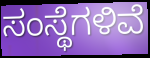
ಸಂಸ್ಥೆಗಳಿವೆ